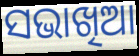
ସଭାଖିଆ